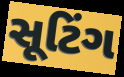
સૂટિંગ